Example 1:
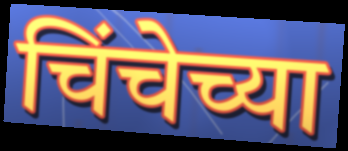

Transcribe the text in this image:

चिंचेच्या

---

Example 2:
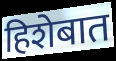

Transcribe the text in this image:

हिशेबात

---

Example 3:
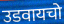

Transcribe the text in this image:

उडवायचो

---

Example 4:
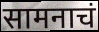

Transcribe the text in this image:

सामनाचं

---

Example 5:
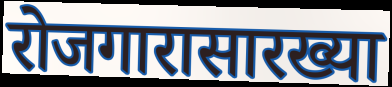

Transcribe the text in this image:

रोजगारासारख्या